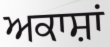
ਅਕਾਸ਼ਾਂ